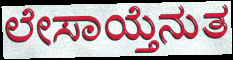
ಲೇಸಾಯ್ತೆನುತ